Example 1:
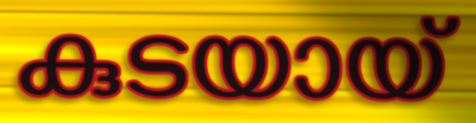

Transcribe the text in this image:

കുടയായ്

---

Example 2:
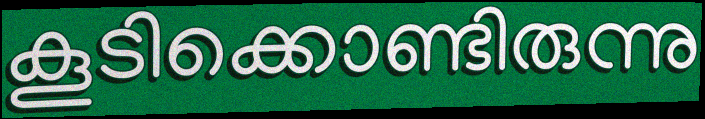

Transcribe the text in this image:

കൂടിക്കൊണ്ടിരുന്നു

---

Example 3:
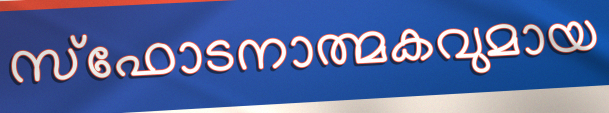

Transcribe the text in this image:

സ്ഫോടനാത്മകവുമായ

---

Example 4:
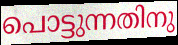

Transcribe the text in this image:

പൊട്ടുന്നതിനു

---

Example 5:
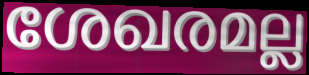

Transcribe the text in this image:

ശേഖരമല്ല